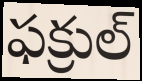
ఫక్రుల్